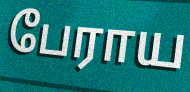
பேராய